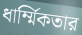
ধার্ম্মিকতার